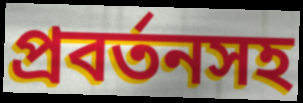
প্রবর্তনসহ